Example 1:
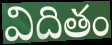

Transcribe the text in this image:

విదితం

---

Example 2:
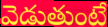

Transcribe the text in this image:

వెడుతుంటే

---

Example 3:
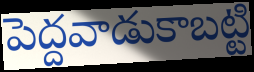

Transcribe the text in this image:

పెద్దవాడుకాబట్టి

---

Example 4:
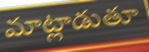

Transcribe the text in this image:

మాట్లాడుతూ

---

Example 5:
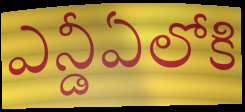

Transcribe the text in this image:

ఎన్డీఏలోకి